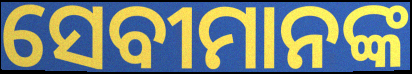
ସେବୀମାନଙ୍କ